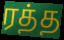
ரத்த